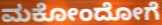
ಮಕೋಂದೋಗೆ